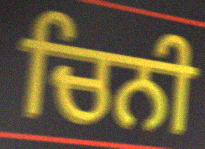
ਚਿਨੀ